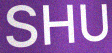
SHU